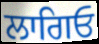
ਲਾਗਿਓ